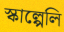
স্কাল্পেলি